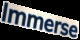
Immerse